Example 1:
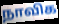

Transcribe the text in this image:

நாவிக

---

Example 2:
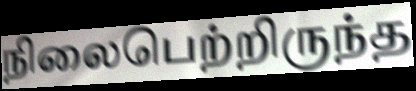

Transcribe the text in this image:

நிலைபெற்றிருந்த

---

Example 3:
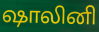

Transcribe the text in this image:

ஷாலினி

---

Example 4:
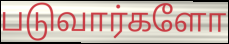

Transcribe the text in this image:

படுவார்களோ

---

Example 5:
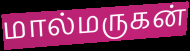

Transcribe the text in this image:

மால்மருகன்